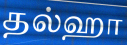
தல்ஹா